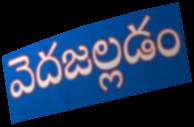
వెదజల్లడం